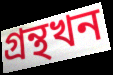
গ্ৰন্থখন